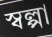
স্বল্পা